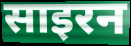
साइरन